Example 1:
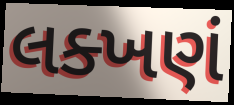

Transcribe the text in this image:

લક્ખણં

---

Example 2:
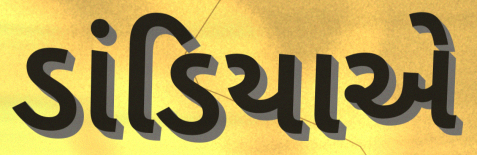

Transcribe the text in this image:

ડાંડિયાએ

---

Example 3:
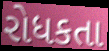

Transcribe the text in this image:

રોધકતા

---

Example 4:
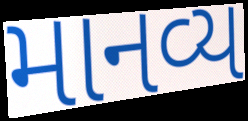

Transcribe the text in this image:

માનવ્ય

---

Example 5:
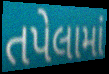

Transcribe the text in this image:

તપેલામાં